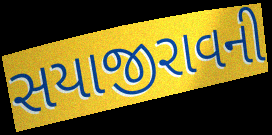
સયાજીરાવની